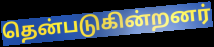
தென்படுகின்றனர்